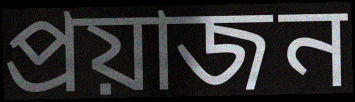
প্রয়াজন